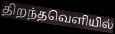
திறந்தவெளியில்